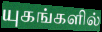
யுகங்களில்